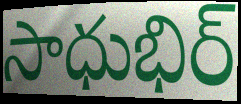
సాధుభిర్